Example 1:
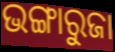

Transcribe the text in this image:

ଭଙ୍ଗାରୁଜା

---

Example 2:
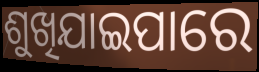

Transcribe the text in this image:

ଶୁଖିଯାଇପାରେ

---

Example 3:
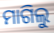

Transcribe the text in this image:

ମାଗିଲୁ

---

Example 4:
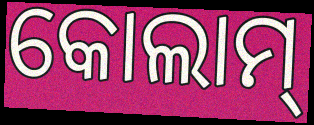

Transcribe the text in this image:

କୋଲାମ୍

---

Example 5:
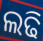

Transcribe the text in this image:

ଲଢି